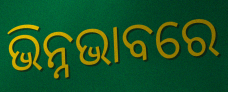
ଭିନ୍ନଭାବରେ